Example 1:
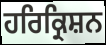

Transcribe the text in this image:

ਹਰਿਕ੍ਰਿਸ਼ਨ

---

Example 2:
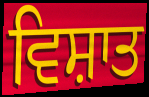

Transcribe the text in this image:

ਵਿਸ਼ਾਤ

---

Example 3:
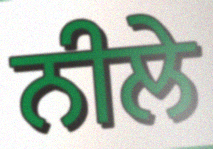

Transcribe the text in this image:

ਨੀਲੇ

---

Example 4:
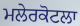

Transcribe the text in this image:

ਮਲੇਰਕੋਟਲਾ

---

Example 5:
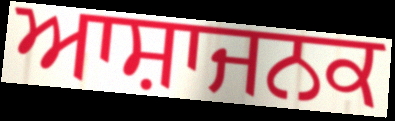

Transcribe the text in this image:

ਆਸ਼ਾਜਨਕ